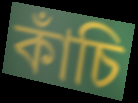
কাঁচি